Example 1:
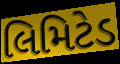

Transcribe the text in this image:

લિમિટેડ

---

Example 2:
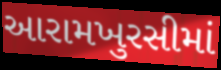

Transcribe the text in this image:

આરામખુરસીમાં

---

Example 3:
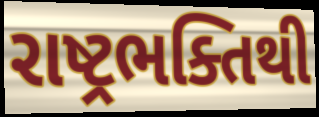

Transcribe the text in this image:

રાષ્ટ્રભક્તિથી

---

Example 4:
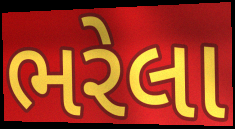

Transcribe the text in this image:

ભરેલા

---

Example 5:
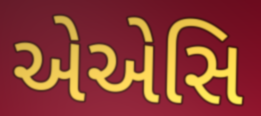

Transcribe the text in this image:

એએસિ